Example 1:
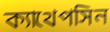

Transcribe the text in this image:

ক্যাথেপসিন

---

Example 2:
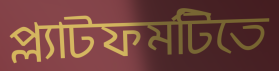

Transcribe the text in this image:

প্ল্যাটফর্মটিতে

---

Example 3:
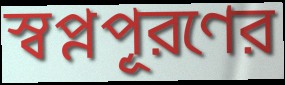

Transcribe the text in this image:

স্বপ্নপূরণের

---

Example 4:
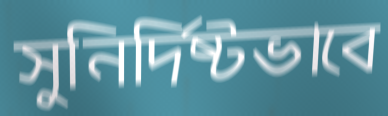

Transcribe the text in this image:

সুনির্দিষ্টভাবে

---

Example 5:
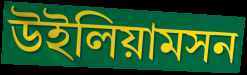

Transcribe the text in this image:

উইলিয়ামসন